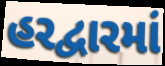
હરદ્વારમાં